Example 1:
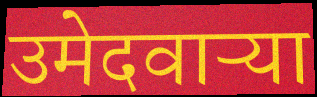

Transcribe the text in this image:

उमेदवाऱ्या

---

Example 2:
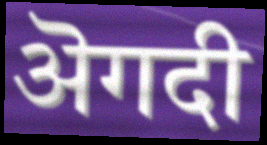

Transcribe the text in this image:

ऄगदी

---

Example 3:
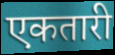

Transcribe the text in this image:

एकतारी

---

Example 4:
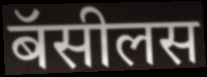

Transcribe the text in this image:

बॅसीलस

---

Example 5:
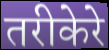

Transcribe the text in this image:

तरीकेरे